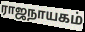
ராஜநாயகம்